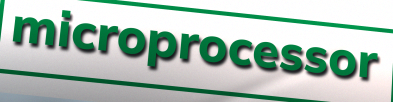
microprocessor